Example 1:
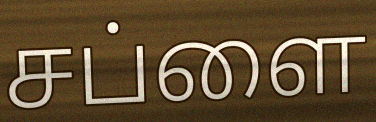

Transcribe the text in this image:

சப்ளை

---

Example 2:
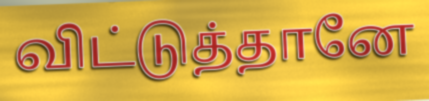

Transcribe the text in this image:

விட்டுத்தானே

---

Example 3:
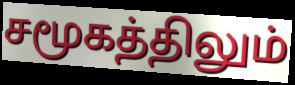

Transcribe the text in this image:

சமூகத்திலும்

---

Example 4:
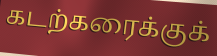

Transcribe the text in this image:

கடற்கரைக்குக்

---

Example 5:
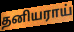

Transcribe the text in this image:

தனியராய்